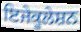
ਇਜੇਕੂਲੇਸ਼ਨ